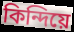
কিন্দিয়ে